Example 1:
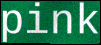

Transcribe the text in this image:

pink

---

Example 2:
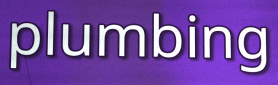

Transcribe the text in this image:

plumbing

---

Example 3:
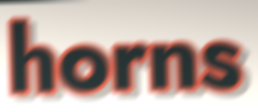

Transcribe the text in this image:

horns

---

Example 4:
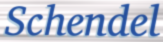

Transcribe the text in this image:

Schendel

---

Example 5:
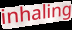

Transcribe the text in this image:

inhaling